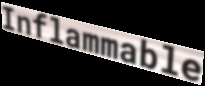
Inflammable